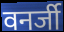
वनर्जी